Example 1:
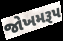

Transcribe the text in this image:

જોખમરૂપ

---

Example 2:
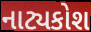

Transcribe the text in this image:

નાટ્યકોશ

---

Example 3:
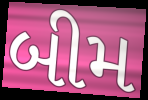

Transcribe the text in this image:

બીમ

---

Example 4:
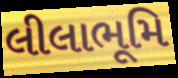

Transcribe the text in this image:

લીલાભૂમિ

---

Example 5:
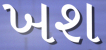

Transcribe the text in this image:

ખશ